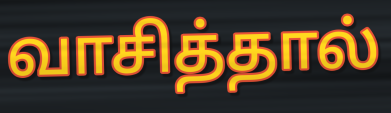
வாசித்தால்